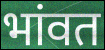
भांवत